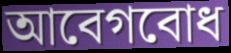
আবেগবোধ